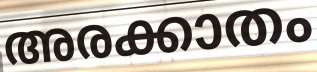
അരക്കാതം